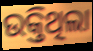
ଉକ୍ତିଥିଲା